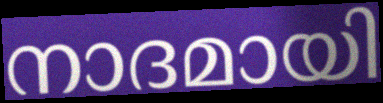
നാദമായി